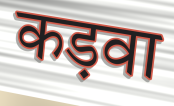
कड़वा